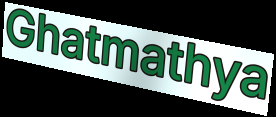
Ghatmathya